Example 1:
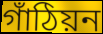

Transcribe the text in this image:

গাঁঠিয়ন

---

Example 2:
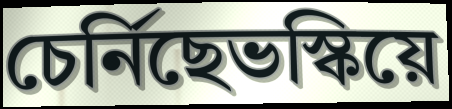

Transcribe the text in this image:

চেৰ্নিছেভস্কিয়ে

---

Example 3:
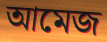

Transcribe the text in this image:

আমেজ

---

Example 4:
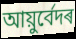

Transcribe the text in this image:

আয়ুৰ্বেদৰ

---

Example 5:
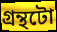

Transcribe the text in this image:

গ্ৰন্থটো